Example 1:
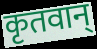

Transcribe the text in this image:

कृतवान्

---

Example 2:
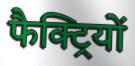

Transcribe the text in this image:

फैक्ट्रियों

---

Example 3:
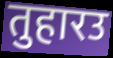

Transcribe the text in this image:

तुहारउ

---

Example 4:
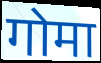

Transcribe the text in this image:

गोमा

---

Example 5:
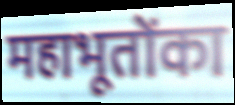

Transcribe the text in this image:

महाभूतोंका